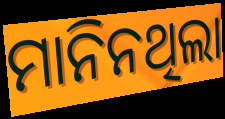
ମାନିନଥିଲା